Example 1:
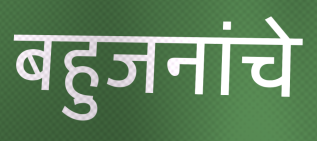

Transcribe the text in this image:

बहुजनांचे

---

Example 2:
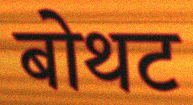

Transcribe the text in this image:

बोथट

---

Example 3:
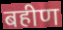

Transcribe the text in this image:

बहीण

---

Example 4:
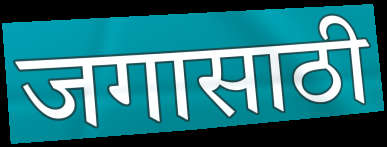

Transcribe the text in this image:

जगासाठी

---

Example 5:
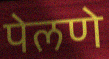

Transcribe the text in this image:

पेलणे